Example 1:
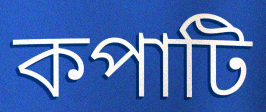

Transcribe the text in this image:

কপাটি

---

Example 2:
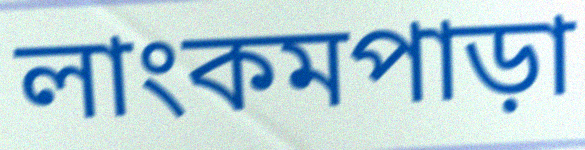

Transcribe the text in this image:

লাংকমপাড়া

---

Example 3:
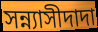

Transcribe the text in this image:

সন্ন্যাসীদাদা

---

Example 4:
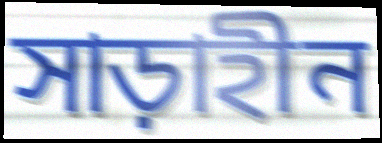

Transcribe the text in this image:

সাড়াহীন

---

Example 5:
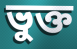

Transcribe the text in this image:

ভুক্ত